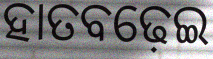
ହାତବଢ଼େଇ